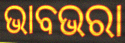
ଭାବଭରା